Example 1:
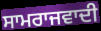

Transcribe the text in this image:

ਸਾਮਰਾਜਵਾਦੀ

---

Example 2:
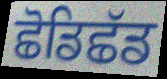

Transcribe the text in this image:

ਛੋਡਿਛੱਡ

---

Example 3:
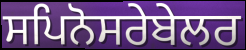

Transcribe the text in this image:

ਸਪਿਨੋਸਰੇਬੇਲਰ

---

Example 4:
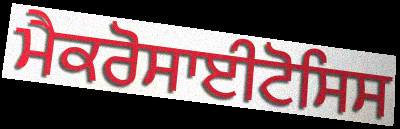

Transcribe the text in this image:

ਮੈਕਰੋਸਾਈਟੋਸਿਸ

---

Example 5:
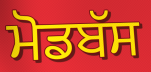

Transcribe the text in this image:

ਮੋਡਬੱਸ